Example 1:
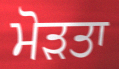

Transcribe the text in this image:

ਮੋੜਤਾ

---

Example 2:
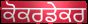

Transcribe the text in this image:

ਕੋਕਰਡੇਕਰ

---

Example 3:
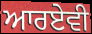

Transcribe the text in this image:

ਆਰਏਵੀ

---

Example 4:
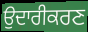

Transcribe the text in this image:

ਉਦਾਰੀਕਰਣ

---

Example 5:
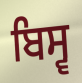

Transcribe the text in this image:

ਬਿਸ੍ਵ